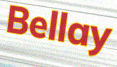
Bellay